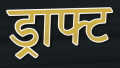
ड्राफ्ट